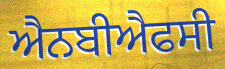
ਐਨਬੀਐਫਸੀ